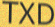
TXD